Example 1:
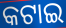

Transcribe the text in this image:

କଟାଇ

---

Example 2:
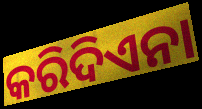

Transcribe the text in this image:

କରିଦିଏନା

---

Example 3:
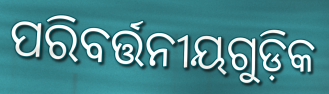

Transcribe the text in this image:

ପରିବର୍ତ୍ତନୀୟଗୁଡ଼ିକ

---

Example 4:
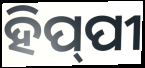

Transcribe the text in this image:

ହିପ୍‍ପୀ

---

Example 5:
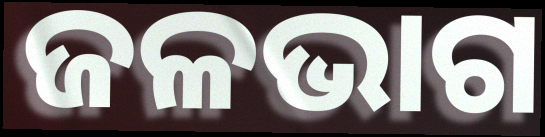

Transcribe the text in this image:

ଜଳଭାଗ